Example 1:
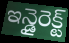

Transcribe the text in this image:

ఇన్డైరెక్ట్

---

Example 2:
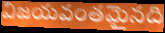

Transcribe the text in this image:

విజయవంతమైనది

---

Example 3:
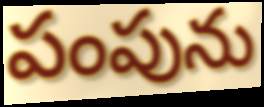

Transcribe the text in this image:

పంపును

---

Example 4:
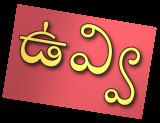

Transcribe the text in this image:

ఉవ్వి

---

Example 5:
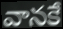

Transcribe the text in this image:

వానకే